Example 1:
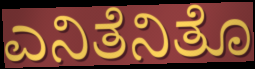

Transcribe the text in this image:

ಎನಿತೆನಿತೊ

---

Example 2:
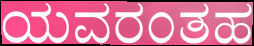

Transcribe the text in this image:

ಯವರಂತಹ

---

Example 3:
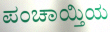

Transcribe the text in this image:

ಪಂಚಾಯ್ತಿಯ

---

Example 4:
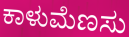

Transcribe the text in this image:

ಕಾಳುಮೆಣಸು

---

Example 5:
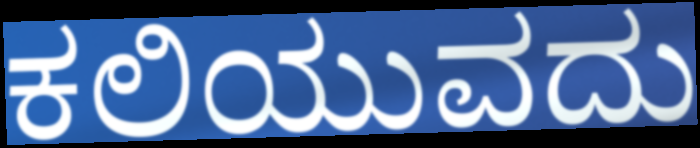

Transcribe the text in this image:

ಕಲಿಯುವದು